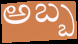
అబ్బ